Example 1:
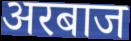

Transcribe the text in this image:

अरबाज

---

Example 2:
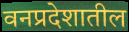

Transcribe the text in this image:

वनप्रदेशातील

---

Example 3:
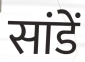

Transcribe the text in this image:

सांडें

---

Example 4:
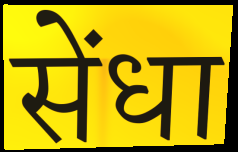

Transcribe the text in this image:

सेंधा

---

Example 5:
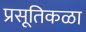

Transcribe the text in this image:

प्रसूतिकळा